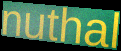
nuthal